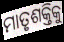
ମାତୃଶକ୍ତିକୁ